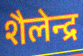
शैलेन्द्र